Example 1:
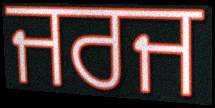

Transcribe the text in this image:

ਜਰਜ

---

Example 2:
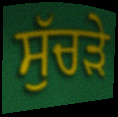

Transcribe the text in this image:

ਸੁੱਚੜੇ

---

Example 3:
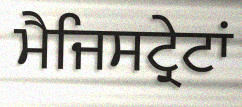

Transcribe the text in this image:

ਮੈਜਿਸਟ੍ਰੇਟਾਂ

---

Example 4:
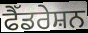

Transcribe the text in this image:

ਫੈੱਡਰੇਸ਼ਨ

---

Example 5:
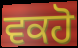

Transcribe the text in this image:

ਵਕਹੋ